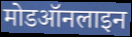
मोडऑनलाइन